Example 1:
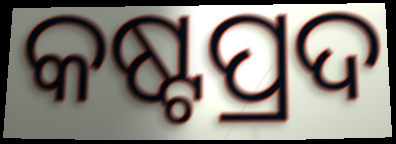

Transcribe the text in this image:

କଷ୍ଟପ୍ରଦ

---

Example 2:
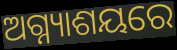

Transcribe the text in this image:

ଅଗ୍ନ୍ୟାଶୟରେ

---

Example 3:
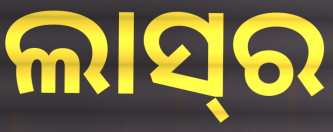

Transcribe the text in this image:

ଲାସ୍‍ର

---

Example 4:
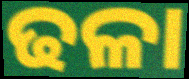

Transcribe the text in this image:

ଢଳା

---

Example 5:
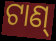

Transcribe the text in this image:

ଟାଣ୍